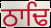
ਠਾਢਿ